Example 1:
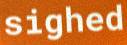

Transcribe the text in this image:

sighed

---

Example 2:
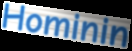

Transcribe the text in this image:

Hominin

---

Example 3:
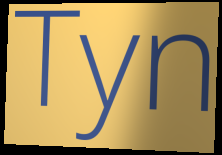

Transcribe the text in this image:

Tyn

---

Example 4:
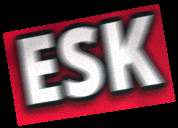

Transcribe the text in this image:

ESK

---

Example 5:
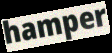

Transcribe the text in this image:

hamper